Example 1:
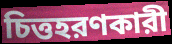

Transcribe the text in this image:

চিত্তহরণকারী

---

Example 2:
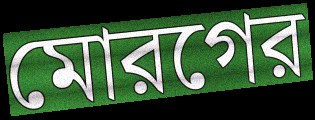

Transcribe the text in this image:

মোরগের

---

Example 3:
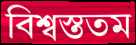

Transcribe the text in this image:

বিশ্বস্ততম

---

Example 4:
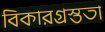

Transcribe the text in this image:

বিকারগ্রস্ততা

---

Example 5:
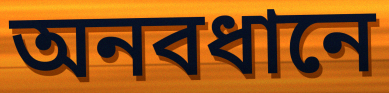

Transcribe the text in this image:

অনবধানে